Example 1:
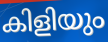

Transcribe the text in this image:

കിളിയും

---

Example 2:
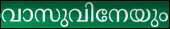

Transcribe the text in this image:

വാസുവിനേയും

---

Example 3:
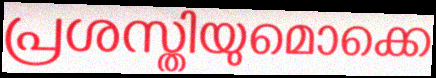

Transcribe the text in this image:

പ്രശസ്തിയുമൊക്കെ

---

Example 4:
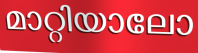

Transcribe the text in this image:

മാറ്റിയാലോ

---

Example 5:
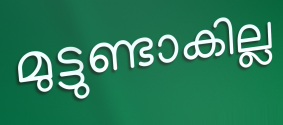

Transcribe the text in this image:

മുട്ടുണ്ടാകില്ല